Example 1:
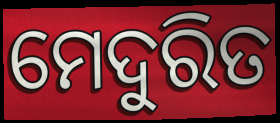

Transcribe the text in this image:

ମେଦୁରିତ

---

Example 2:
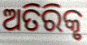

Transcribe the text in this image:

ଅତିରିକୃ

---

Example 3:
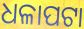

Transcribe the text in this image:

ଧଳାପଟା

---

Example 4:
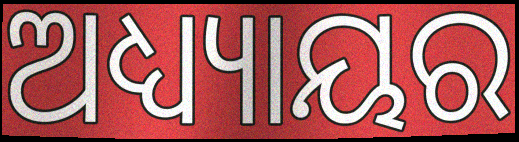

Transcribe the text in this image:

ଅଧ୍ୟ୍ୟାୟର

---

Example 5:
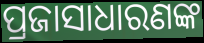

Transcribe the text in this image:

ପ୍ରଜାସାଧାରଣଙ୍କ